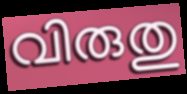
വിരുതു